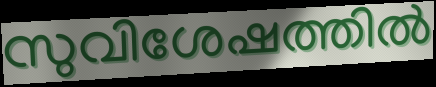
സുവിശേഷത്തിൽ